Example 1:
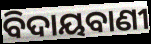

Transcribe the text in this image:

ବିଦାୟବାଣୀ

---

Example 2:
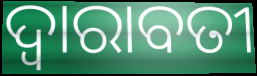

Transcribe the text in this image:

ଦ୍ଵାରାବତୀ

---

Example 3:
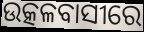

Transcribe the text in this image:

ଉତ୍କଳବାସୀରେ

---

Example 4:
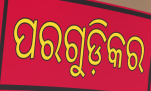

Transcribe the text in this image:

ପରଗୁଡ଼ିକର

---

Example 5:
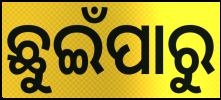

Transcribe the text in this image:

ଛୁଇଁପାରୁ